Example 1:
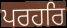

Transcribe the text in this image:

ਪਰਹਰਿ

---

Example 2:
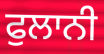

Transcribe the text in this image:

ਫੁਲਾਨੀ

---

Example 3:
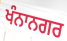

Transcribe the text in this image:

ਖੰਨਾਨਗਰ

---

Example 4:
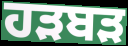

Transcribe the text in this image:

ਹੜਬੜ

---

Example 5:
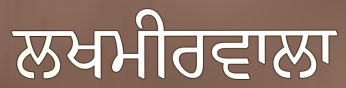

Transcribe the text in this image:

ਲਖਮੀਰਵਾਲਾ